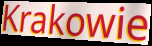
Krakowie